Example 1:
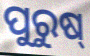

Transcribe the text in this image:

ପୁରୁଷ୍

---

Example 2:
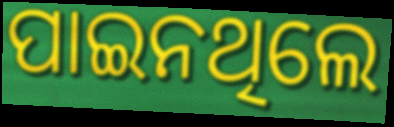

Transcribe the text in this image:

ପାଇନଥିଲେ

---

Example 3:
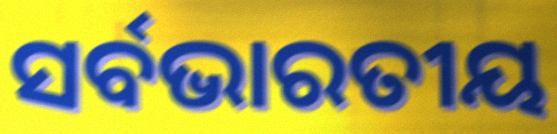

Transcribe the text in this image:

ସର୍ବଭାରତୀୟ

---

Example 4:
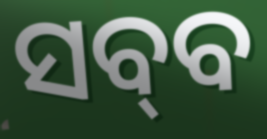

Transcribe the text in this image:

ସବ୍‌ବ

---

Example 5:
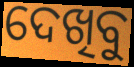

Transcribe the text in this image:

ଦେଖିବୁ